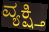
ವ್ಯಕ್ಷ್ತಿ